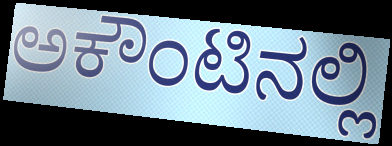
ಅಕೌಂಟಿನಲ್ಲಿ